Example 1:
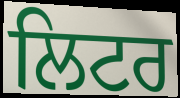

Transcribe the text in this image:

ਲਿਟਰ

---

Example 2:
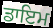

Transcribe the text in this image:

ਡਾਇਮ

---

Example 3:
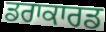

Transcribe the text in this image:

ਡਰਾਕਾਰਡ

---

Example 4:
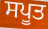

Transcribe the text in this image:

ਸਪੂਤ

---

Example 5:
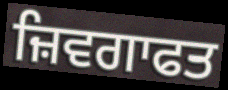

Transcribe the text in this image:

ਜ਼ਿਵਗਾਫਤ